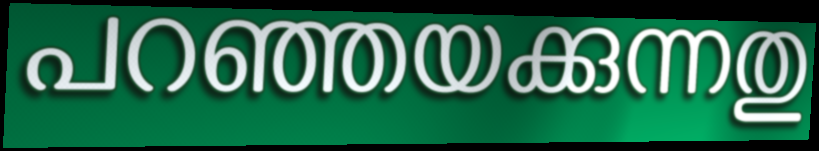
പറഞ്ഞയക്കുന്നതു